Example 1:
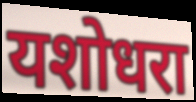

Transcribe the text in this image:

यशोधरा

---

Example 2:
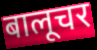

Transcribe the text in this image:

बालूचर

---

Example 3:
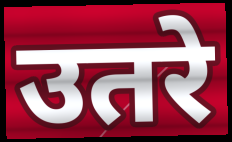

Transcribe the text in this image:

उतरे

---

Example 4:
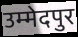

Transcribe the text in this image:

उम्मेदपुर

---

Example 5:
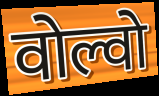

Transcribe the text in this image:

वोल्वो